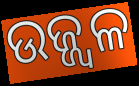
ଉଜ୍ଜ୍ବଳ